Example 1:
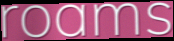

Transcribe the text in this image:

roams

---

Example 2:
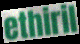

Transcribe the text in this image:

ethiril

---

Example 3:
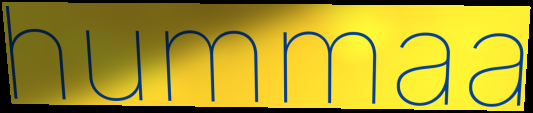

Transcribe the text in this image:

hummaa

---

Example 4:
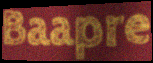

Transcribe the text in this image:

Baapre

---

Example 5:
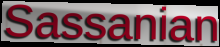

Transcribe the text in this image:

Sassanian